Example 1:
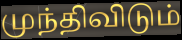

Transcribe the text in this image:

முந்திவிடும்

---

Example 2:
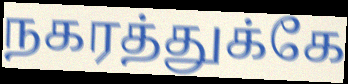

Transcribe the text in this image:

நகரத்துக்கே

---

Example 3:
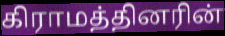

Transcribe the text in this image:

கிராமத்தினரின்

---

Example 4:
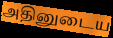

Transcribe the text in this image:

அதினுடைய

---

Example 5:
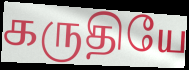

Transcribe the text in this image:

கருதியே